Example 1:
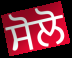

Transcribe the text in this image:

ਸੋਲੋ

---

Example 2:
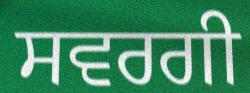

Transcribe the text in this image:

ਸਵਰਗੀ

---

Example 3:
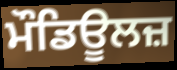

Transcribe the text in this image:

ਮੌਡਿਊਲਜ਼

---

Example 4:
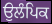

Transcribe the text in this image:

ਉਲੰਪਿਕ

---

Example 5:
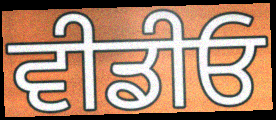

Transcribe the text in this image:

ਵੀਡੀਓ